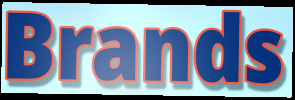
Brands